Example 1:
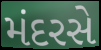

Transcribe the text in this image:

મંદરસે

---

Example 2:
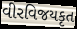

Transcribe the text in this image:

વીરવિજયકૃત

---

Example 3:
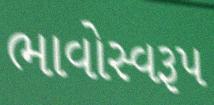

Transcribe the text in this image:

ભાવોસ્વરૂપ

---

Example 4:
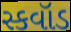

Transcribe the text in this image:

સ્કવૉડ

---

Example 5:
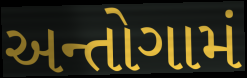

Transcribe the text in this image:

અન્તોગામં